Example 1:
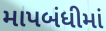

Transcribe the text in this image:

માપબંધીમાં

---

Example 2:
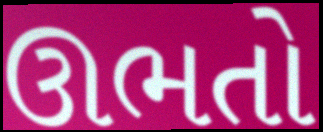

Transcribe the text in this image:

ઊભતો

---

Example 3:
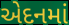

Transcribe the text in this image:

એદનમાં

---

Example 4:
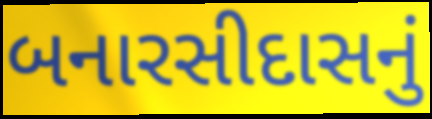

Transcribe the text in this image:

બનારસીદાસનું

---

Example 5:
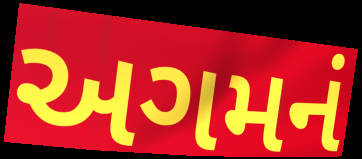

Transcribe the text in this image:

અગમનં